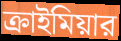
ক্রাইমিয়ার